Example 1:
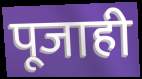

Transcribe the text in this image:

पूजाही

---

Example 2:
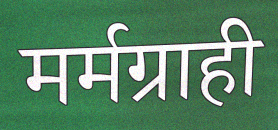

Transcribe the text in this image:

मर्मग्राही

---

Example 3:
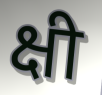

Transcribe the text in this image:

क्षी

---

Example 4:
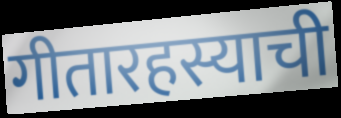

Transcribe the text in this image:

गीतारहस्याची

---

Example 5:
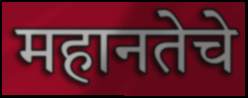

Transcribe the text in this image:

महानतेचे